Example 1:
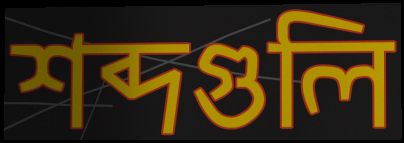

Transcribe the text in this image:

শব্দগুলি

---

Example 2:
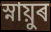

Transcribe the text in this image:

স্নায়ুৰ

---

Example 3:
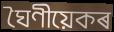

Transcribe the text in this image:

ঘৈণীয়েকৰ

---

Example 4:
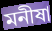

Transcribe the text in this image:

মনীষা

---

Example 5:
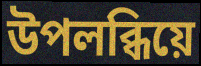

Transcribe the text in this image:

উপলব্ধিয়ে